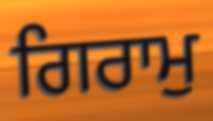
ਗਿਰਾਮੁ